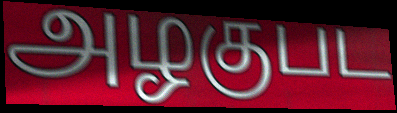
அழகுபட